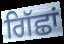
ਗਿੱਛਾਂ